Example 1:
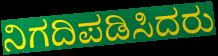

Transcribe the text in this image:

ನಿಗದಿಪಡಿಸಿದರು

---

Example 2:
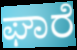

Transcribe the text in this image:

ಘಾರೆ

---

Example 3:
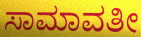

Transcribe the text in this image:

ಸಾಮಾವತೀ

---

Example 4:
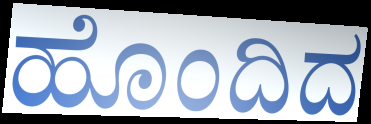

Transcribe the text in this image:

ಹೊಂದಿದ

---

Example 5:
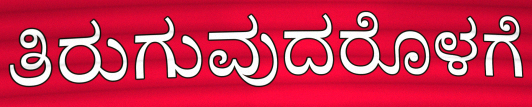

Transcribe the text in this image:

ತಿರುಗುವುದರೊಳಗೆ